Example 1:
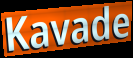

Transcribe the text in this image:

Kavade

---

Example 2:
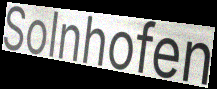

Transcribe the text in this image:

Solnhofen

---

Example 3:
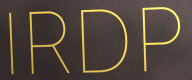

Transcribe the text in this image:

IRDP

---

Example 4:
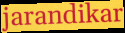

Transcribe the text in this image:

jarandikar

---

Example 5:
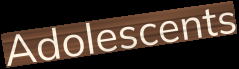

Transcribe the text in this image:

Adolescents